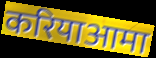
करियाआमा